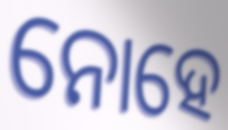
ନୋହେ